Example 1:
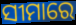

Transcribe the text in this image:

ସୀମାରେ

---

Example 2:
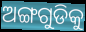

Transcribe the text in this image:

ଅଙ୍ଗଗୁଡିକୁ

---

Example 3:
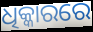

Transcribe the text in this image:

ଧିକ୍କାରରେ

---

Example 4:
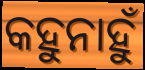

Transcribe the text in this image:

କହୁନାହୁଁ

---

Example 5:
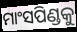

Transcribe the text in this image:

ମାଂସପିଣ୍ଡକୁ